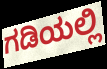
ಗಡಿಯಲ್ಲಿ